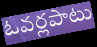
ఓవర్లపాటు